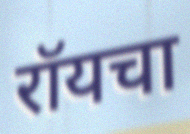
रॉयचा